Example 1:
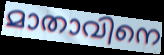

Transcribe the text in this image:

മാതാവിനെ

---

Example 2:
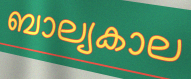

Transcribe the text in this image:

ബാല്യകാല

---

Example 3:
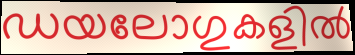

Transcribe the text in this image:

ഡയലോഗുകളിൽ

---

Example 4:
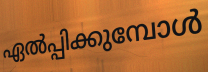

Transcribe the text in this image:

ഏൽപ്പിക്കുമ്പോൾ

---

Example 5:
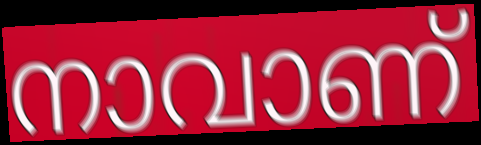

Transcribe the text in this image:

നാവാണ്